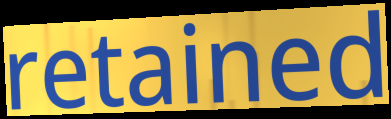
retained